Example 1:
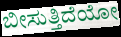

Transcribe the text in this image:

ಬೀಸುತ್ತಿದೆಯೋ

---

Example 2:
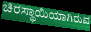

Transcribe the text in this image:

ಚಿರಸ್ಥಾಯಿಯಾಗಿರುವ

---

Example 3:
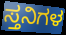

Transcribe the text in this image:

ಸ್ತನಿಗಳ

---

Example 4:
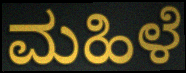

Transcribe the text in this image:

ಮಹಿಳೆ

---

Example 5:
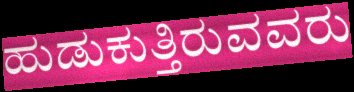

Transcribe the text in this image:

ಹುಡುಕುತ್ತಿರುವವರು